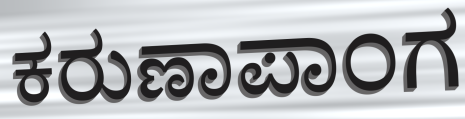
ಕರುಣಾಪಾಂಗ